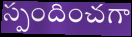
స్పందించగా